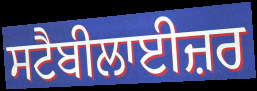
ਸਟੈਬੀਲਾਈਜ਼ਰ